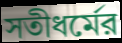
সতীধর্মের